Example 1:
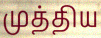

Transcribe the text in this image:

முத்திய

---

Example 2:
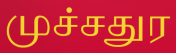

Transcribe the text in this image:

முச்சதுர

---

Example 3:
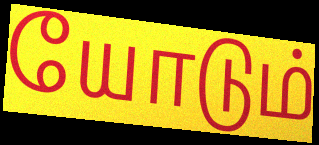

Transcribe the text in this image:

யோடும்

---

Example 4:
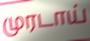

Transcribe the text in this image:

முரடாய்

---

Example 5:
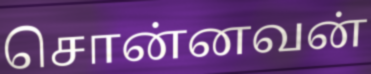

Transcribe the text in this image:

சொன்னவன்